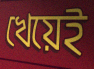
খেয়েই